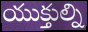
యుక్తుల్ని